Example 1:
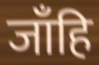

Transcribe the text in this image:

जाँहि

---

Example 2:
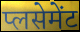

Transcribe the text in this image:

प्लसेमेंट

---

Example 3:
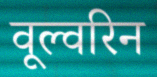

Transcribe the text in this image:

वूल्वरिन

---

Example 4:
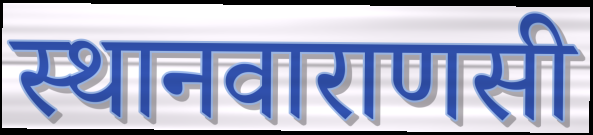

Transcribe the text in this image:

स्थानवाराणसी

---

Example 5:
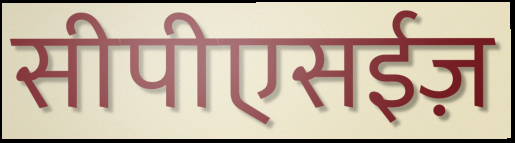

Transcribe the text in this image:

सीपीएसईज़